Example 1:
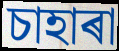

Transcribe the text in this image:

চাহাৰা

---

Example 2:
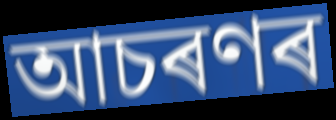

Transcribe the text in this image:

আচৰণৰ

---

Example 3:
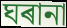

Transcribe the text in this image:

ঘৰানা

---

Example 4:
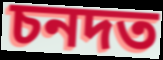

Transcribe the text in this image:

চনদত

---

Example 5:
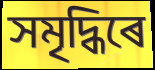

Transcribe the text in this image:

সমৃদ্ধিৰে